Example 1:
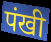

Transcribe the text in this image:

पंखी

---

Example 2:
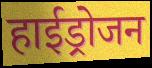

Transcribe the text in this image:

हाईड्रोजन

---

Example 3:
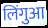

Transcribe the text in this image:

लिंगुआ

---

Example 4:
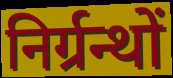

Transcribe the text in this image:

निर्ग्रन्थों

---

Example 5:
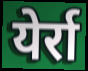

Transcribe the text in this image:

येर्रा